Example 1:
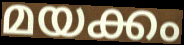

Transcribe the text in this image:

മയക്കം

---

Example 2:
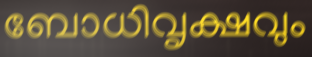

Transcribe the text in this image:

ബോധിവൃക്ഷവും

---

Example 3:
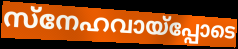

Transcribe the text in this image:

സ്നേഹവായ്പ്പോടെ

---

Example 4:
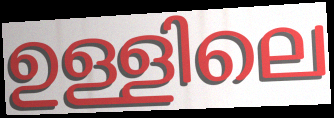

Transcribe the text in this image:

ഉള്ളിലെ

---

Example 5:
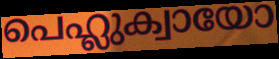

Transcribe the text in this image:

പെഹ്ലുക്വായോ